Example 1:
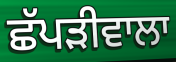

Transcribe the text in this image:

ਛੱਪੜੀਵਾਲਾ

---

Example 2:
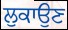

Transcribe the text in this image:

ਲੁਕਾਉਣ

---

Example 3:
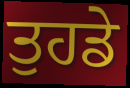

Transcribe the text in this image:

ਤੁਹਡੇ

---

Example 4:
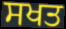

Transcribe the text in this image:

ਸਖਤ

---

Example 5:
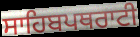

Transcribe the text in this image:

ਸਾਹਿਬਪਥਰਾਟੀ